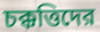
চক্কত্তিদের